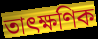
তাৎক্ষণিক